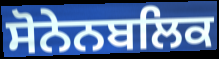
ਸੋਨੇਨਬਲਿਕ